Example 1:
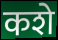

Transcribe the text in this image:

कशे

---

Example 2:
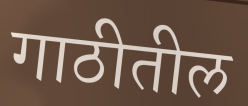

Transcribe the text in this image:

गाठीतील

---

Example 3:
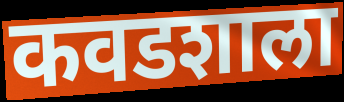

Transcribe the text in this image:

कवडशाला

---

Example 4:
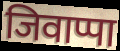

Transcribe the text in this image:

जिवाप्पा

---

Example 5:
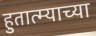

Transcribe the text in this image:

हुतात्म्याच्या